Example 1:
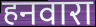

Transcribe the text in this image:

हनवारा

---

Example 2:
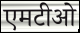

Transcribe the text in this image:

एमटीओ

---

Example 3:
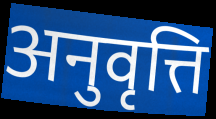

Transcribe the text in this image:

अनुवृत्ति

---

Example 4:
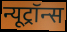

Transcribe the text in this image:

न्यूट्रॉन्स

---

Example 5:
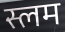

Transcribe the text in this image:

स्लम